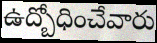
ఉద్బోధించేవారు